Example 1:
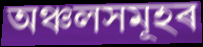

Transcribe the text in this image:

অঞ্চলসমূহৰ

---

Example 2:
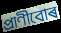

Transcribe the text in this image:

প্ৰাণীবোৰ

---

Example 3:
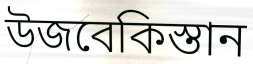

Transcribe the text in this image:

উজবেকিস্তান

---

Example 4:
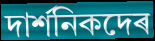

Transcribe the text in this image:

দাৰ্শনিকদেৰ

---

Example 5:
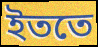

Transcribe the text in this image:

ইততে